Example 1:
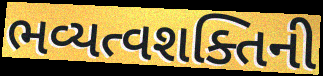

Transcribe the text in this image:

ભવ્યત્વશક્તિની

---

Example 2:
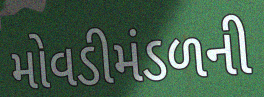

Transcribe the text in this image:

મોવડીમંડળની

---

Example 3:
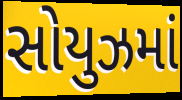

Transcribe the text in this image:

સોયુઝમાં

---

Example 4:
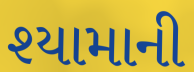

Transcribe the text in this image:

શ્યામાની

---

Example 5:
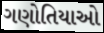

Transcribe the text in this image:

ગણોતિયાઓ